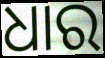
ଧାର